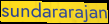
sundararajan